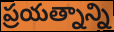
ప్రయత్నాన్ని